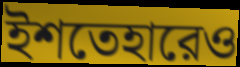
ইশতেহারেও